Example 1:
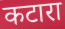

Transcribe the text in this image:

कटारा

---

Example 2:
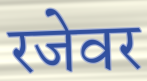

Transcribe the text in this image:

रजेवर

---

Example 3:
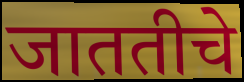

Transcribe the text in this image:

जाततीचे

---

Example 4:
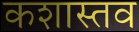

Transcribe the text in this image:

कशास्तव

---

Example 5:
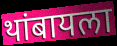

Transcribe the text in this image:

थांबायला